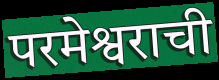
परमेश्वराची